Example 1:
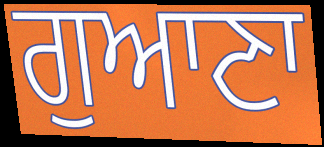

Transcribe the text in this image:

ਗੁਆਣਾ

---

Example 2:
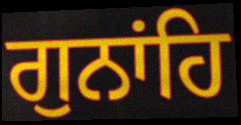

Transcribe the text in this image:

ਗੁਨਾਂਹਿ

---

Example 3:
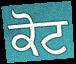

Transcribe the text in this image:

ਕੋਟ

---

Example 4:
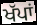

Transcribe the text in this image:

ਖੱਪਾਂ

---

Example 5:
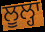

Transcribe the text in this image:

ਲੂਲ੍ਹਾ